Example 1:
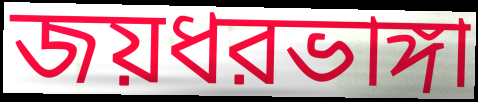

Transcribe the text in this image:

জয়ধরভাঙ্গা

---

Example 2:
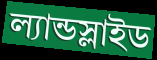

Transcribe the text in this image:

ল্যান্ডস্লাইড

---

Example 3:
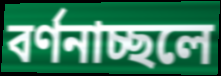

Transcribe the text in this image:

বর্ণনাচ্ছলে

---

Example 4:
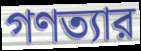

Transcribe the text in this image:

গণত্যার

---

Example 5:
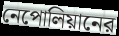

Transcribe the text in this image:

নেপোলিয়ানের